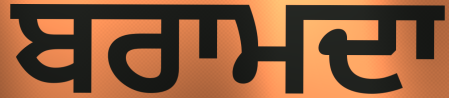
ਬਰਾਮਦਾ